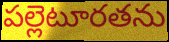
పల్లెటూరతను